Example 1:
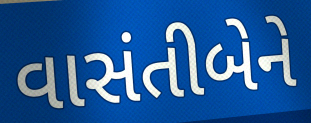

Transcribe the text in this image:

વાસંતીબેને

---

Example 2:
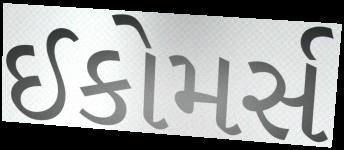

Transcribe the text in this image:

ઈકોમર્સ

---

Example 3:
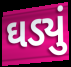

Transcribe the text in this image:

ઘડ્યું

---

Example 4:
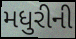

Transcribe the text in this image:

મધુરીની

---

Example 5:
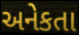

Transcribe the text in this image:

અનેકતા